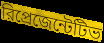
রিপ্রেজেন্টেটিভ